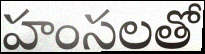
హంసలతో